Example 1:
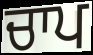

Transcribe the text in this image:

ਚਾਪ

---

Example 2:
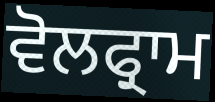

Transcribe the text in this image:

ਵੋਲਫ੍ਰਾਮ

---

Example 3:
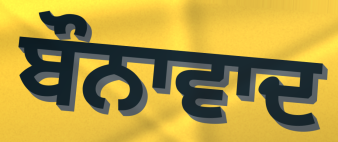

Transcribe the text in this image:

ਬੌਨਾਵਾਦ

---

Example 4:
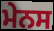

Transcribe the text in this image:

ਮੇਨਸ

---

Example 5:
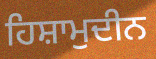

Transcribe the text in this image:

ਹਿਸ਼ਾਮੁਦੀਨ